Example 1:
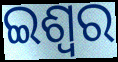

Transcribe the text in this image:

ଇଶ୍ବର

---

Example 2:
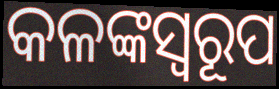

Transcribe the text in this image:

କଳଙ୍କସ୍ୱରୂପ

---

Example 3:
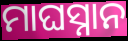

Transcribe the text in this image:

ମାଘସ୍ନାନ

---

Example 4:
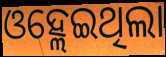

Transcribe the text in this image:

ଓହ୍ଲେଇଥିଲା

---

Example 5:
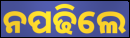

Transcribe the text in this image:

ନପଢିଲେ